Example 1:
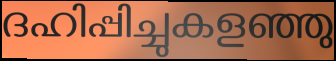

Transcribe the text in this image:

ദഹിപ്പിച്ചുകളഞ്ഞു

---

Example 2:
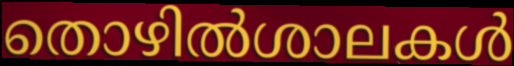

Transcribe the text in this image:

തൊഴിൽശാലകൾ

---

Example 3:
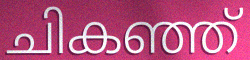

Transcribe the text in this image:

ചികഞ്ഞ്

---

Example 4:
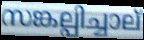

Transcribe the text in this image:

സങ്കല്പിച്ചാല്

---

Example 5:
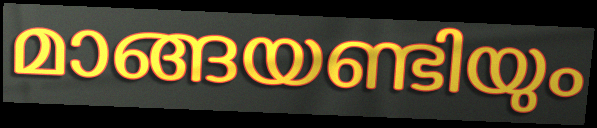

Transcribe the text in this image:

മാങ്ങയണ്ടിയും